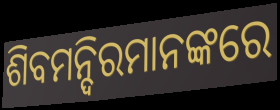
ଶିବମନ୍ଦିରମାନଙ୍କରେ